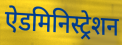
ऐडमिनिस्ट्रेशन